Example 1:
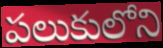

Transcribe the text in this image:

పలుకులోని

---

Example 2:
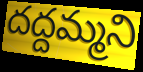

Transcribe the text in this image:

దద్దమ్మని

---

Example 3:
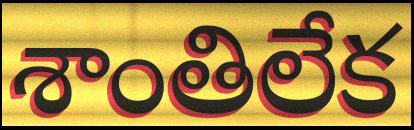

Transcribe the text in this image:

శాంతిలేక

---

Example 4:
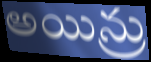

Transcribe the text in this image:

అయిన్రు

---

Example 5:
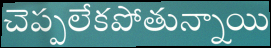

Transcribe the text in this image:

చెప్పలేకపోతున్నాయి